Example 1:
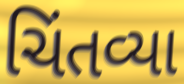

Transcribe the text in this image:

ચિંતવ્યા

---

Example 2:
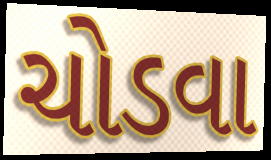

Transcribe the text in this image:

ચોડવા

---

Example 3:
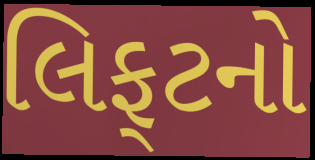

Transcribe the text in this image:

લિફ્‌ટનો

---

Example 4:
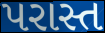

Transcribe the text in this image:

પરાસ્ત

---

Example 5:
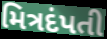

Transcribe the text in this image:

મિત્રદંપતી